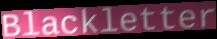
Blackletter